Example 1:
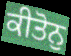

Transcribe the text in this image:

ਕੀਤੋਨੁ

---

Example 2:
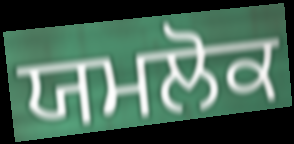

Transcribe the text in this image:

ਯਮਲੋਕ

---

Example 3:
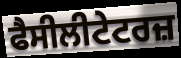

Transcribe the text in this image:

ਫੈਸੀਲੀਟੇਟਰਜ਼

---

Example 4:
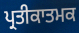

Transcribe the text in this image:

ਪ੍ਰਤੀਕਾਤਮਕ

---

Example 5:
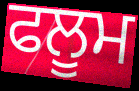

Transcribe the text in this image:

ਫਲੂਮ